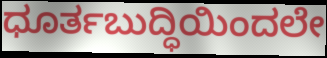
ಧೂರ್ತಬುದ್ಧಿಯಿಂದಲೇ